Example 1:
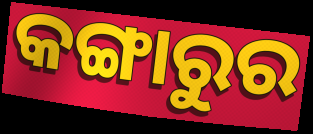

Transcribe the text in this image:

କଙ୍ଗାରୁର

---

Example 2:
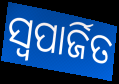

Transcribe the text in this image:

ସ୍ଵପାର୍ଜିତ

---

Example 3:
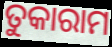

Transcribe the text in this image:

ତୁକାରାମ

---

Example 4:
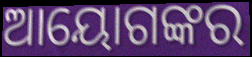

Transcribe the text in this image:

ଆୟୋଗଙ୍କର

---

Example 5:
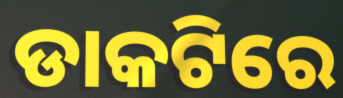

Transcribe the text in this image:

ଡାକଟିରେ